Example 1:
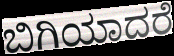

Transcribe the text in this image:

ಬಿಗಿಯಾದರೆ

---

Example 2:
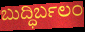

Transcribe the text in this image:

ಬುದ್ಧಿರ್ಬಲಂ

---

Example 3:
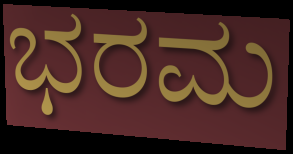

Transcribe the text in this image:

ಭರಮ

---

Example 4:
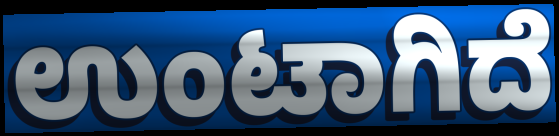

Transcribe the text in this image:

ಉಂಟಾಗಿದೆ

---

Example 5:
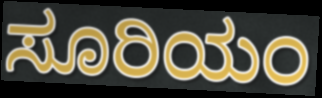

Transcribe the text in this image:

ಸೂರಿಯಂ